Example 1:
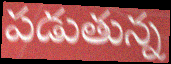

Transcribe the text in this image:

పడుతున్న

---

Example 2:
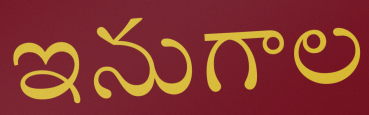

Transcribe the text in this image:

ఇనుగాల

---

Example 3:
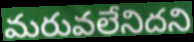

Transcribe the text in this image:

మరువలేనిదని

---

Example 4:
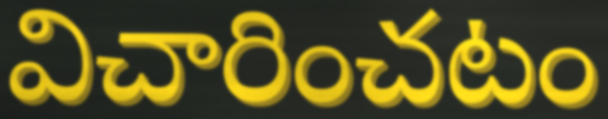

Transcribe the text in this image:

విచారించటం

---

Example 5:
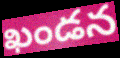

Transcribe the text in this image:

ఖండన